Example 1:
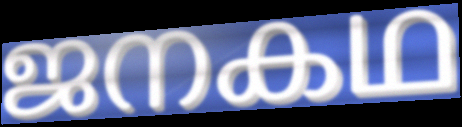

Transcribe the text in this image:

ജനകഥ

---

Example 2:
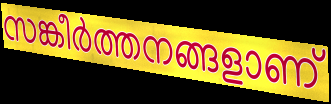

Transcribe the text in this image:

സങ്കീർത്തനങ്ങളാണ്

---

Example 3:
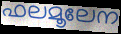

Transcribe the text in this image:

ഫലമൂലേന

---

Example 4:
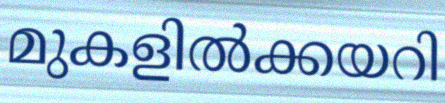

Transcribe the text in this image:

മുകളിൽക്കയറി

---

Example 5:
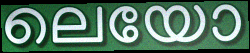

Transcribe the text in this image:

ലെയോ